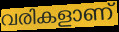
വരികളാണ്